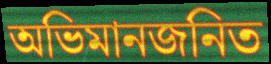
অভিমানজনিত